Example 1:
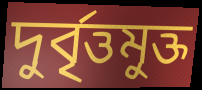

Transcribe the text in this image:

দুর্বৃত্তমুক্ত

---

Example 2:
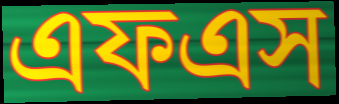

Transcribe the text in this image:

এফএস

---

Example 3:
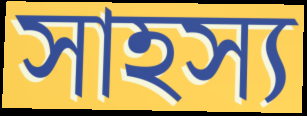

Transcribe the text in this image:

সাহস্য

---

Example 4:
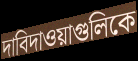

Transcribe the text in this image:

দাবিদাওয়াগুলিকে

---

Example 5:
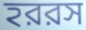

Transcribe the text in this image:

হররস